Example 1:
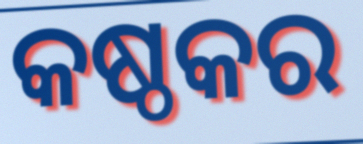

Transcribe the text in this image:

କଷ୍ଠକର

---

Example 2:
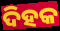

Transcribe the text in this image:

ଦିହକ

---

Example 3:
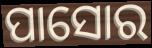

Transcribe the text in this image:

ପାସୋର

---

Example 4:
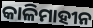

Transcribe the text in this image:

କାଳିମାହୀନ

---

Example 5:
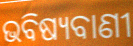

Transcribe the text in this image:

ଭବିଷ୍ଯବାଣୀ